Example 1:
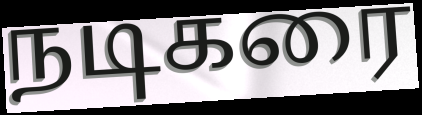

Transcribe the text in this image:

நடிகரை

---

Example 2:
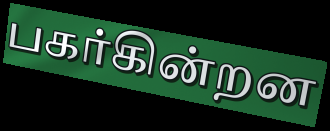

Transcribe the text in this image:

பகர்கின்றன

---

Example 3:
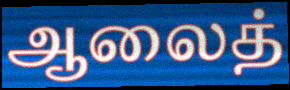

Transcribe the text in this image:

ஆலைத்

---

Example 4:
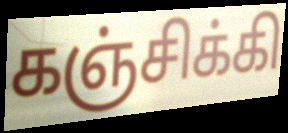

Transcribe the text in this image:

கஞ்சிக்கி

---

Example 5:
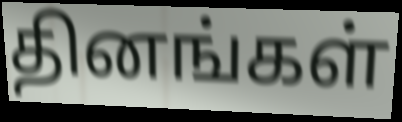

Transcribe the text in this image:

தினங்கள்